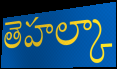
తెహల్కా